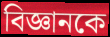
বিজ্ঞানকে